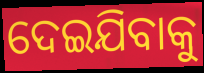
ଦେଇଯିବାକୁ